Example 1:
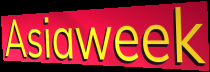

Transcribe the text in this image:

Asiaweek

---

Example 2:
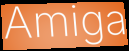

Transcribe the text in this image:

Amiga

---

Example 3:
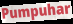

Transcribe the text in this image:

Pumpuhar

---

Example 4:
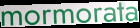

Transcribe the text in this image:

mormorata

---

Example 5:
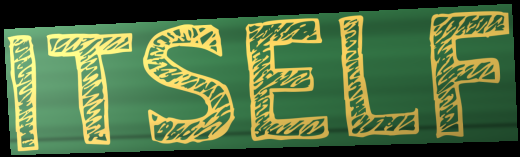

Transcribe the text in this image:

ITSELF